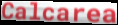
Calcarea